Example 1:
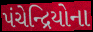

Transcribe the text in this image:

પંચેન્દ્રિયોના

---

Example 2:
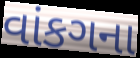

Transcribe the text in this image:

વાંકગના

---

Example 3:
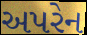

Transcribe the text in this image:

અપરેન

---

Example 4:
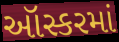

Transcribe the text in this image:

ઑસ્કરમાં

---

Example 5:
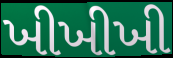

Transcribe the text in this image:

ખીખીખી